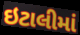
ઇટાલીમાં